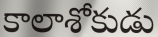
కాలాశోకుడు